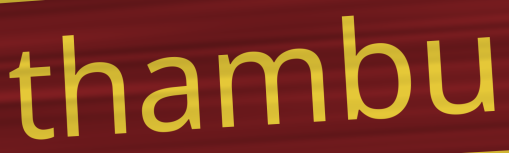
thambu